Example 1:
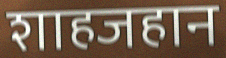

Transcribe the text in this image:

शाहजहान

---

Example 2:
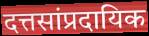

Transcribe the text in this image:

दत्तसांप्रदायिक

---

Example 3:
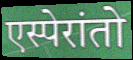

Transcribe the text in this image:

एस्पेरांतो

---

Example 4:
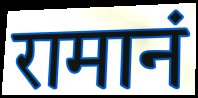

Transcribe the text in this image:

रामानं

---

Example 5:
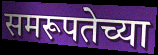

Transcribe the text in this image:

समरूपतेच्या